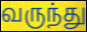
வருந்து